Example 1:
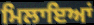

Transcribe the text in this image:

ਮਿਲਾਇਆਂ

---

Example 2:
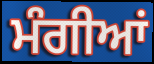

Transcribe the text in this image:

ਮੰਗੀਆਂ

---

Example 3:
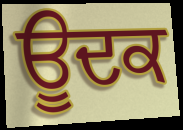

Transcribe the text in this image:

ਊਦਕ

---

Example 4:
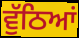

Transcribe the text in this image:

ਵੁੱਠਿਆਂ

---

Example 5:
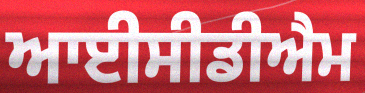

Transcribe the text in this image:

ਆਈਸੀਡੀਐਮ